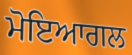
ਮੋਇਆਗਲ